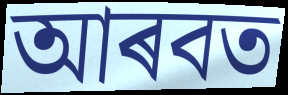
আৰবত